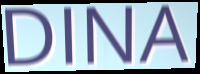
DINA